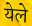
येले